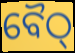
ବୈଠ୍